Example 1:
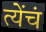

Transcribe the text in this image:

त्येंचं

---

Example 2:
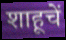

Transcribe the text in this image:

शाहूचें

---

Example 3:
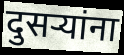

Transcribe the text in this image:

दुसर्‍यांना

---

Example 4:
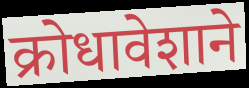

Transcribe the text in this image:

क्रोधावेशाने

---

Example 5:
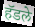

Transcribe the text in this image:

हॅडले